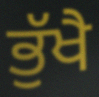
ਭੁੱਖੈ